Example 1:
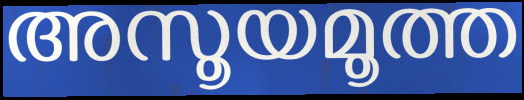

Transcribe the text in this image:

അസൂയമൂത്ത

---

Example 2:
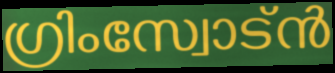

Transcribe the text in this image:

ഗ്രിംസ്വോട്ൻ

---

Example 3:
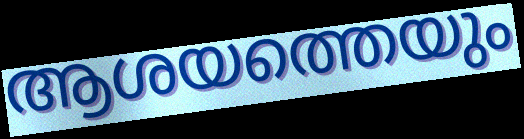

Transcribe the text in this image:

ആശയത്തെയും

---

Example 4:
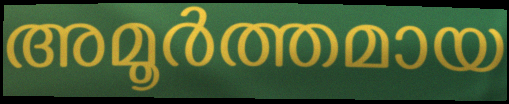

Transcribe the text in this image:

അമൂർത്തമായ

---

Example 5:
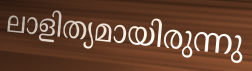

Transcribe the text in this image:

ലാളിത്യമായിരുന്നു